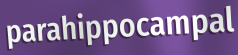
parahippocampal